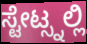
ಸ್ಟೇಟ್ಸ್ನಲ್ಲಿ